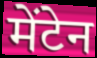
मेंटेन